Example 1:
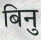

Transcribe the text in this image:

बिनु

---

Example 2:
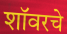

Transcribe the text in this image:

शॉवरचे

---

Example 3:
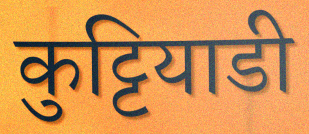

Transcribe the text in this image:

कुट्टियाडी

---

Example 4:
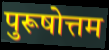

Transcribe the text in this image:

पुरूषोत्तम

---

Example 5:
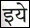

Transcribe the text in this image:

इये